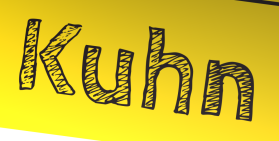
Kuhn